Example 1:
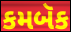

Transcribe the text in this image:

કમબૅક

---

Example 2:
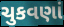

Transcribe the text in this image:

ચુકવણાં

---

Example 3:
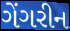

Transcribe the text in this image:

ગેંગરીન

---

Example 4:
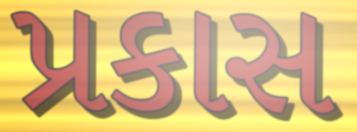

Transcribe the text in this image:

પ્રકાસ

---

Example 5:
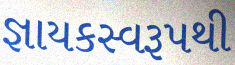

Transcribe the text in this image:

જ્ઞાયકસ્વરૂપથી